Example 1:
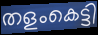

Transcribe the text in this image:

തളംകെട്ടി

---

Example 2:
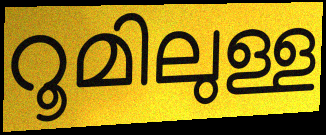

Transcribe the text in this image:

റൂമിലുള്ള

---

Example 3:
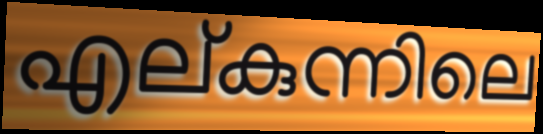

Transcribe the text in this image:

എല്കുന്നിലെ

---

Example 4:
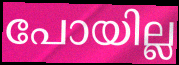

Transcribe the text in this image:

പോയില്ല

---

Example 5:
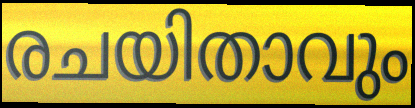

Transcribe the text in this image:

രചയിതാവും